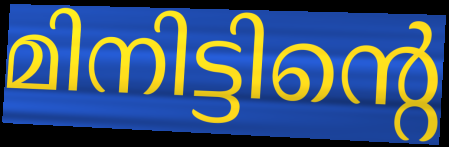
മിനിട്ടിന്റെ